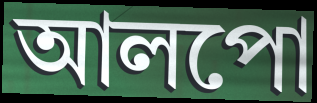
আলপো